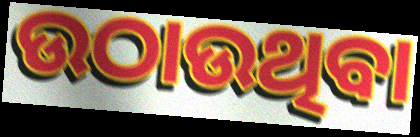
ଉଠାଉଥିବା